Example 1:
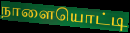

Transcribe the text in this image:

நாளையொட்டி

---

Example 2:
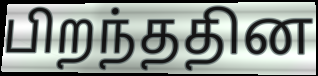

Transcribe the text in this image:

பிறந்ததின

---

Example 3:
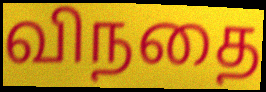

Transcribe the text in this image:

விநதை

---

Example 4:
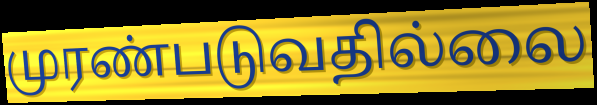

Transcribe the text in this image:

முரண்படுவதில்லை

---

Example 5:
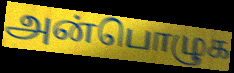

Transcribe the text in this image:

அன்பொழுக